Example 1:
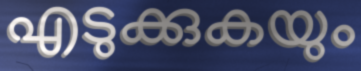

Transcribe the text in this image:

എടുക്കുകയും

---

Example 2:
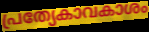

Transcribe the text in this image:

പ്രത്യേകാവകാശം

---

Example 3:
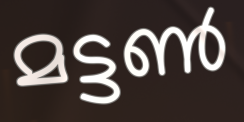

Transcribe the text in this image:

മട്ടൺ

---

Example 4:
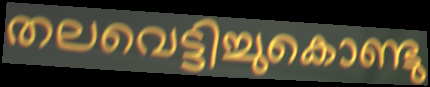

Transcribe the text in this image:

തലവെട്ടിച്ചുകൊണ്ടു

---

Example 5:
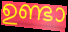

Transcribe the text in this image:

ഉണ്ടാ